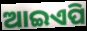
ଆଇଏପି